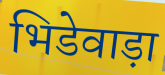
भिडेवाड़ा